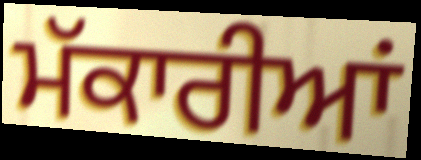
ਮੱਕਾਰੀਆਂ